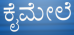
ಕೈಮೇಲೆ